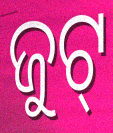
ଜୁଟ୍